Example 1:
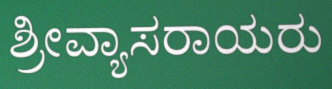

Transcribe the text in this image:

ಶ್ರೀವ್ಯಾಸರಾಯರು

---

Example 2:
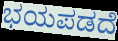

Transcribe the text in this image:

ಭಯಪಡದೆ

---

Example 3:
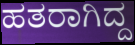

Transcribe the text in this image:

ಹತರಾಗಿದ್ದ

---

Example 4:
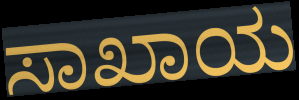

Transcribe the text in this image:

ಸಾಖಾಯ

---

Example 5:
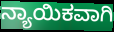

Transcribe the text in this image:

ನ್ಯಾಯಿಕವಾಗಿ